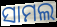
ସାମଲ